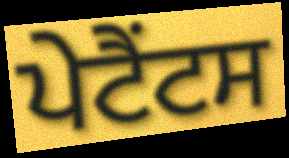
ਪੇਟੈਂਟਸ